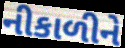
નીકાળીને